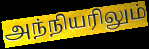
அந்நியரிலும்